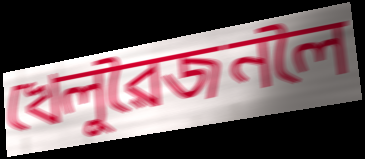
খেলুৱৈজনলৈ